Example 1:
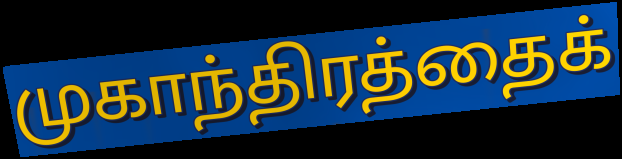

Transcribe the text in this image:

முகாந்திரத்தைக்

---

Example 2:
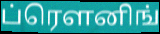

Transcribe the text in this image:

ப்ரௌனிங்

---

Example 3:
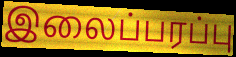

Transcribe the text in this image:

இலைப்பரப்பு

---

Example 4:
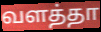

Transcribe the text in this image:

வளத்தா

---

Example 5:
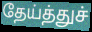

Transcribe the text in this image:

தேய்த்துச்